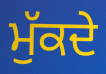
ਮੁੱਕਦੇ